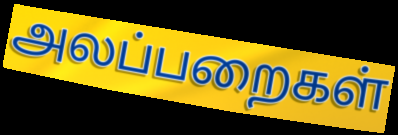
அலப்பறைகள்